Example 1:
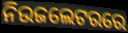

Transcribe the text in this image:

ନିଉଜଲେଟରରେ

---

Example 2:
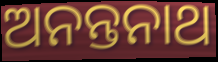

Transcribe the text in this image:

ଅନନ୍ତନାଥ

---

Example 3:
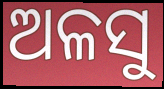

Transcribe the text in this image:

ଅଳସୁ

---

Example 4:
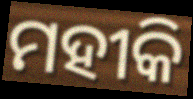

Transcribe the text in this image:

ମହୀକି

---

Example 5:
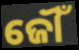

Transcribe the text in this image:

ଜୌଁ